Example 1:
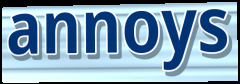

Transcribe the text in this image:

annoys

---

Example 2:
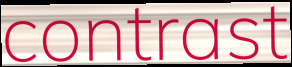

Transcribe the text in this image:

contrast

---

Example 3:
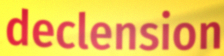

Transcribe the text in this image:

declension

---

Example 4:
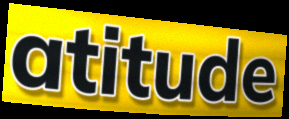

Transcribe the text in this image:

atitude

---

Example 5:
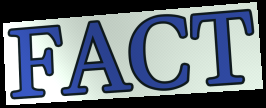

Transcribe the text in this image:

FACT